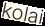
kolai